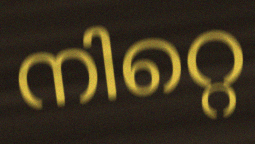
നിറ്റെ